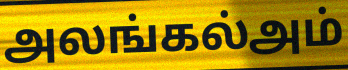
அலங்கல்அம்